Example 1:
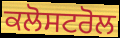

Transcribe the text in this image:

ਕਲੋਸਟਰੋਲ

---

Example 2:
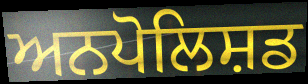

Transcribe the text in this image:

ਅਨਪੋਲਿਸ਼ਡ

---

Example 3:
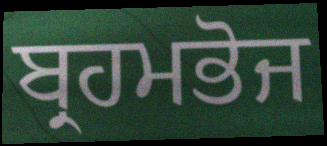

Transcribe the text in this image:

ਬ੍ਰਹਮਭੋਜ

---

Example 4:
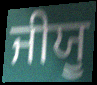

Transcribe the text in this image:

ਜੀਯੂ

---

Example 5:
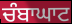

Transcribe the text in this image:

ਚੰਬਾਘਾਟ